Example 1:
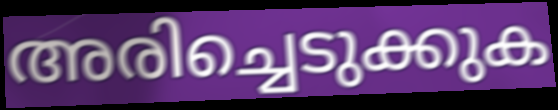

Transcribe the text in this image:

അരിച്ചെടുക്കുക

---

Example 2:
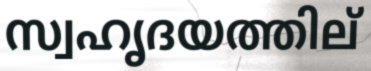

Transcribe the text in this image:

സ്വഹൃദയത്തില്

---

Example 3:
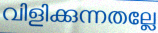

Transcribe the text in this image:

വിളിക്കുന്നതല്ലേ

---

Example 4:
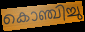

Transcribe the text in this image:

കൊഞ്ചിച്ചു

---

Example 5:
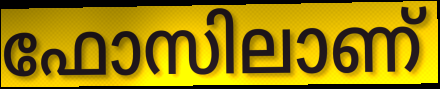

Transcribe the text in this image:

ഫോസിലാണ്